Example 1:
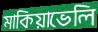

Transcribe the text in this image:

মাকিয়াভেলি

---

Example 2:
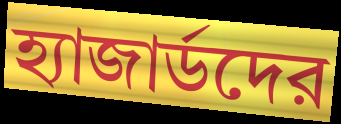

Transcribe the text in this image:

হ্যাজার্ডদের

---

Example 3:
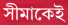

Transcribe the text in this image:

সীমাকেই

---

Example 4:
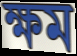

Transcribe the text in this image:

ক্ষম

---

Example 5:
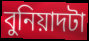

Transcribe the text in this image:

বুনিয়াদটা